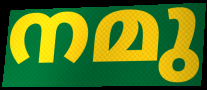
നമു